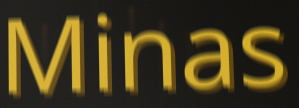
Minas